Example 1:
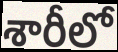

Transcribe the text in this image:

శారీలో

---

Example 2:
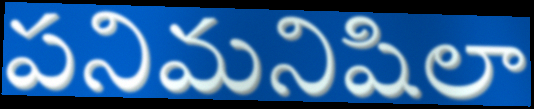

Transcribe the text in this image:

పనిమనిషిలా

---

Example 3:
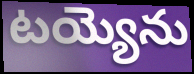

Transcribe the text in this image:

టయ్యెను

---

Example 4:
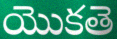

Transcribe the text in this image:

యొకతె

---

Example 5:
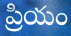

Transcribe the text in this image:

ప్రియం